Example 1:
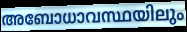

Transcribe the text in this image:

അബോധാവസ്ഥയിലും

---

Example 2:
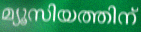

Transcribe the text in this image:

മ്യൂസിയത്തിന്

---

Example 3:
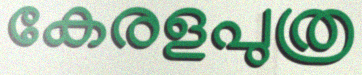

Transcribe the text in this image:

കേരളപുത്ര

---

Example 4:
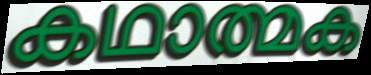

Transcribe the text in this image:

കഥാത്മക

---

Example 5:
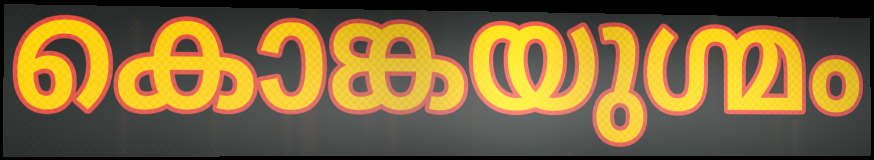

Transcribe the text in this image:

കൊങ്കയുഗ്മം